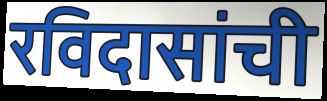
रविदासांची